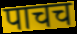
पाचच